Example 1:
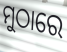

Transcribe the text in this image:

ମୁଠାରେ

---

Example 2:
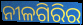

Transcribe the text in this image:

ନୀଳଗିରିର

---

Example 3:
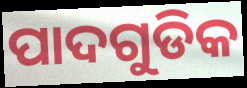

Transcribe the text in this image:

ପାଦଗୁଡିକ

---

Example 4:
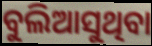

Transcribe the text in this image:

ବୁଲିଆସୁଥିବା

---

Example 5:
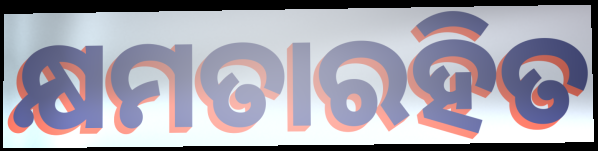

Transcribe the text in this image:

କ୍ଷମତାରହିତ